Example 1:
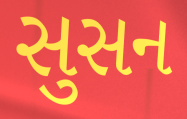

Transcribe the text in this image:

સુસન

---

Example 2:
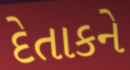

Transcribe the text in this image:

દેતાકને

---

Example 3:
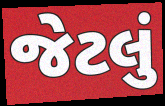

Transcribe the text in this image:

જેટલું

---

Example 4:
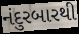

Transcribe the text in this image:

નંદુરબારથી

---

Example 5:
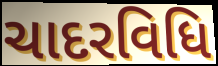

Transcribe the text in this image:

ચાદરવિધિ